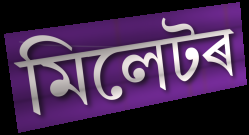
মিলেটৰ